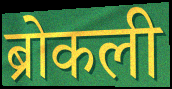
ब्रोकली